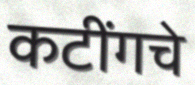
कटींगचे